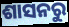
ଶାସନରୁ